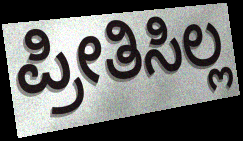
ಪ್ರೀತಿಸಿಲ್ಲ